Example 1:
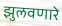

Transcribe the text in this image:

झुलवणारे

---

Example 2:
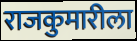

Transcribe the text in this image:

राजकुमारीला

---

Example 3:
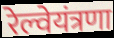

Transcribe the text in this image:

रेल्वेयंत्रणा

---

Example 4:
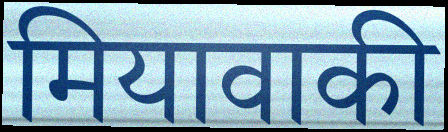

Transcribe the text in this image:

मियावाकी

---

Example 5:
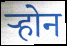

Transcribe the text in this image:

र्‍होन